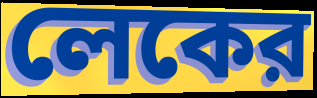
লেকের